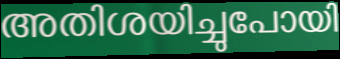
അതിശയിച്ചുപോയി